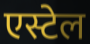
एस्टेल